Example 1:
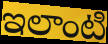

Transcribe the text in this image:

ఇలాంటి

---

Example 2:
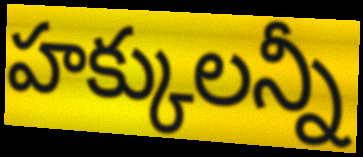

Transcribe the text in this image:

హక్కులన్నీ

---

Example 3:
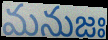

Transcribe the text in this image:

మనుజః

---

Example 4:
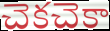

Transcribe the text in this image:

చెకచెకా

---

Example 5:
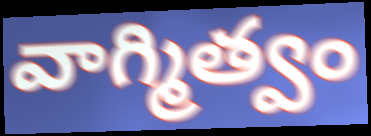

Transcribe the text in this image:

వాగ్మిత్వం